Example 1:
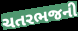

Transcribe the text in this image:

ચતરભજની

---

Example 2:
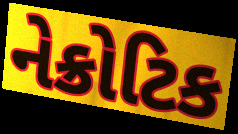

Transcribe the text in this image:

નેક્રોટિક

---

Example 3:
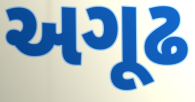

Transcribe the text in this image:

અગૂઢ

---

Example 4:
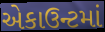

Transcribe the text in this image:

એકાઉન્ટમાં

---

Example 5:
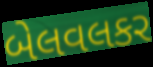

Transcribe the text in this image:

બેલવલકર